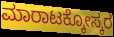
ಮಾರಾಟಕ್ಕೋಸ್ಕರ